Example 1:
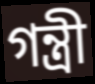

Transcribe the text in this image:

গন্ত্রী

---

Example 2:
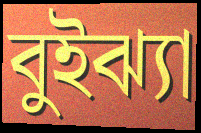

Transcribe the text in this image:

বুইঝ্যা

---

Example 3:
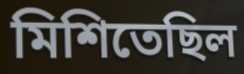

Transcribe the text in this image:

মিশিতেছিল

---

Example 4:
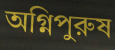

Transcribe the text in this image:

অগ্নিপুরুষ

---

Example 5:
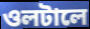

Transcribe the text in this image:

ওলটালে